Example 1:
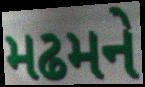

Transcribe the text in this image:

મઢમને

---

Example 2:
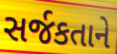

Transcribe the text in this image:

સર્જકતાને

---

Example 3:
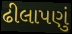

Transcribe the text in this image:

ઢીલાપણું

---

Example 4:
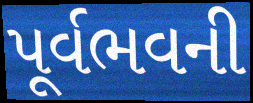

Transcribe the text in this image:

પૂર્વભવની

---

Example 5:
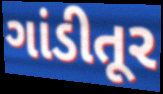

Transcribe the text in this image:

ગાંડીતૂર